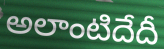
అలాంటిదేదీ